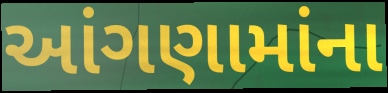
આંગણામાંના